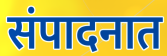
संपादनात